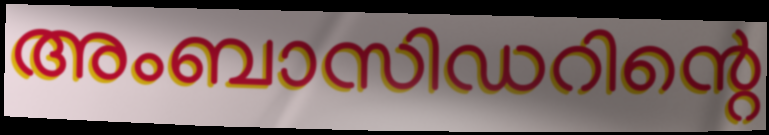
അംബാസിഡറിന്റെ